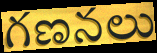
గణనలు